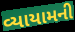
વ્યાયામની